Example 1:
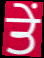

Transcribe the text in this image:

ਤੇੰ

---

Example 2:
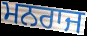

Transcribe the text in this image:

ਮਨਰਾਜ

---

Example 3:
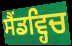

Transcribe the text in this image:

ਸੈਂਡਵ੍ਹਿਚ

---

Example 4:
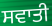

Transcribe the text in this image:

ਸਵਾਤੀ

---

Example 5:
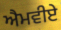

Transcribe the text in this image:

ਐਮਵੀਏ